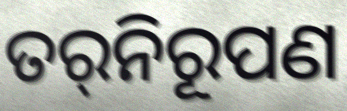
ତର୍‌ନିରୂପଣ